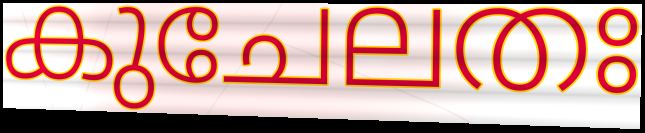
കുചേലതഃ